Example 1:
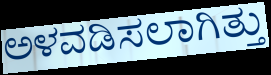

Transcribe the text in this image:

ಅಳವಡಿಸಲಾಗಿತ್ತು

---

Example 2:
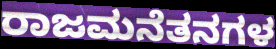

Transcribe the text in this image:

ರಾಜಮನೆತನಗಳ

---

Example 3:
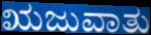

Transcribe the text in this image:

ಋಜುವಾತು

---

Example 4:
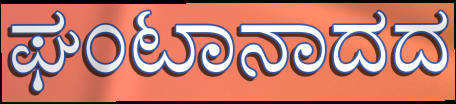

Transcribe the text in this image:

ಘಂಟಾನಾದದ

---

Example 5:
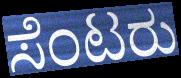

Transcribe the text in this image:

ಸೆಂಟರು